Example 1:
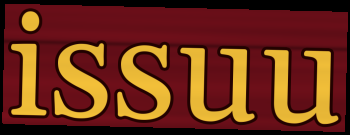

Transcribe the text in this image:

issuu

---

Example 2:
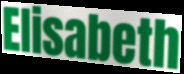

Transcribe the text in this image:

Elisabeth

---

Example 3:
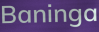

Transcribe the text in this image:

Baninga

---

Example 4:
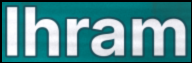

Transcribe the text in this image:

lhram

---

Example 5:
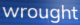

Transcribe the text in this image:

wrought